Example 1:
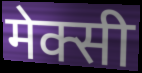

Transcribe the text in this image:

मेक्सी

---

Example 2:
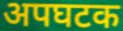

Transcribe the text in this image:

अपघटक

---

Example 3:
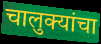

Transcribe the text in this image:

चालुक्यांचा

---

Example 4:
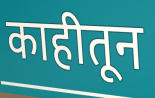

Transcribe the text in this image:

काहीतून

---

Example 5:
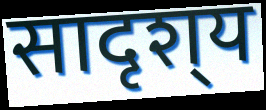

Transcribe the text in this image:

सादृश्य